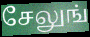
சேலுங்